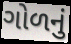
ગોળનું